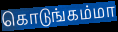
கொடுங்கம்மா